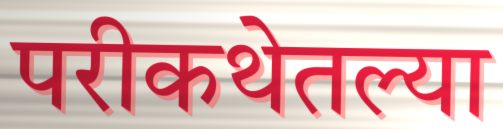
परीकथेतल्या